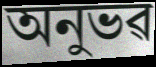
অনুভৱ